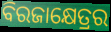
ବିରଜାକ୍ଷେତ୍ରର